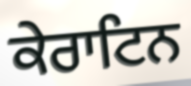
ਕੇਰਾਟਿਨ